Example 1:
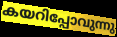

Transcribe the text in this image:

കയറിപ്പോവുന്നു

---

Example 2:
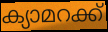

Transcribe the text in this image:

ക്യാമറക്ക്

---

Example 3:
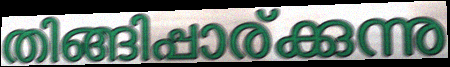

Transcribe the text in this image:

തിങ്ങിപ്പാര്ക്കുന്നു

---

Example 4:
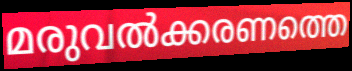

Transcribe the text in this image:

മരുവൽക്കരണത്തെ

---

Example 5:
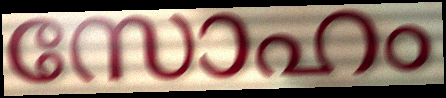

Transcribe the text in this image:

സോഹം